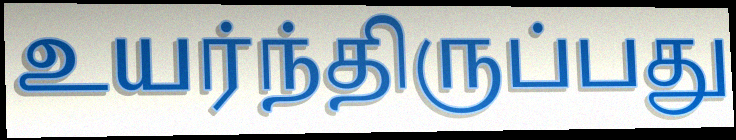
உயர்ந்திருப்பது